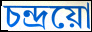
চন্দ্ৰয়ো